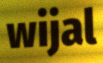
wijal